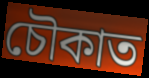
চৌকাত